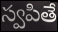
స్వపితే